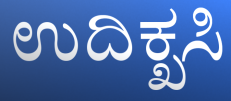
ಉದಿಕ್ಖಸಿ